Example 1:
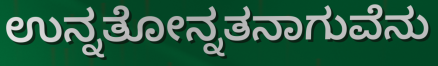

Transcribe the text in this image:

ಉನ್ನತೋನ್ನತನಾಗುವೆನು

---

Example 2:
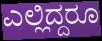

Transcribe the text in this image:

ಎಲ್ಲಿದ್ದರೂ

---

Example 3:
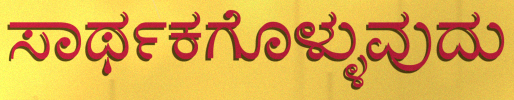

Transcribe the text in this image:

ಸಾರ್ಥಕಗೊಳ್ಳುವುದು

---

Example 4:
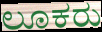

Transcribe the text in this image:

ಲೂಕರು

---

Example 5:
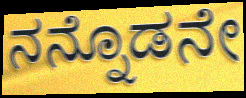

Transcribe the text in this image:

ನನ್ನೊಡನೇ